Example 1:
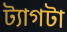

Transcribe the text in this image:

ট্যাগটা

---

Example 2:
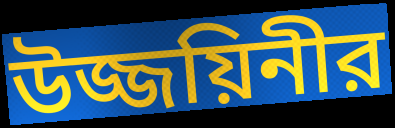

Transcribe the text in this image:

উজ্জয়িনীর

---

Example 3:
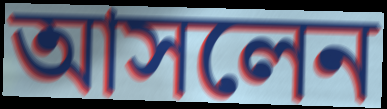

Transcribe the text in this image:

আসলেন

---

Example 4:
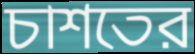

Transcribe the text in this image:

চাশতের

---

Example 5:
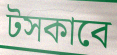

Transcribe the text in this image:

টসকাবে